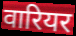
वारियर